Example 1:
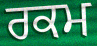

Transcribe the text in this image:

ਰਕਮ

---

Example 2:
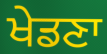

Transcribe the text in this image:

ਖੇਡਣਾ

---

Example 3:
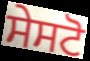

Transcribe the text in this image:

ਸੇਸਟੋ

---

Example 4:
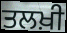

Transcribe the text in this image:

ਤਲਖ਼ੀ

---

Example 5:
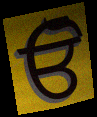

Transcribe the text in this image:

ਓੋ